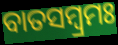
ବାତସମ୍ବ୍ରମଃ